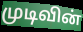
முடிவின்